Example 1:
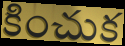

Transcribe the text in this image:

కించుక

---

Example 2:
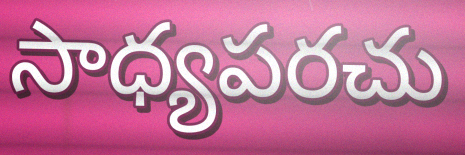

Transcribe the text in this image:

సాధ్యపరచు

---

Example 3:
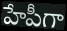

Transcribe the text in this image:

హేపీగా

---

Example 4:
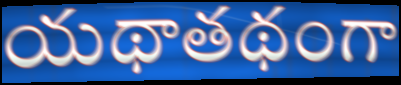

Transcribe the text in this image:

యథాతథంగా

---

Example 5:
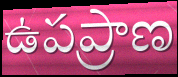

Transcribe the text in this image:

ఉపప్రాణ